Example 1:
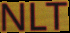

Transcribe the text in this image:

NLT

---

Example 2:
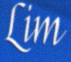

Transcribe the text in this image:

Lim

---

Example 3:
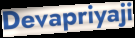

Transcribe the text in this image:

Devapriyaji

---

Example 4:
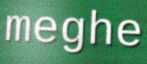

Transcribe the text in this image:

meghe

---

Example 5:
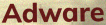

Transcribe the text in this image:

Adware